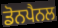
ਡੋਨਪੈਨਲ